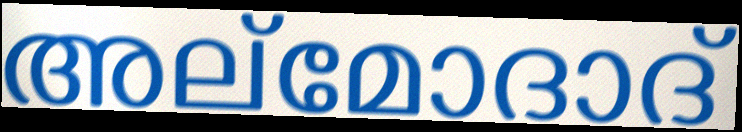
അല്മോദാദ്